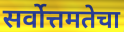
सर्वोत्तमतेचा